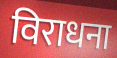
विराधना